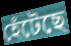
হেঁটেছে